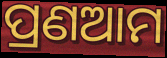
ପ୍ରଣଆମ